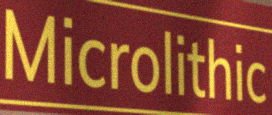
Microlithic